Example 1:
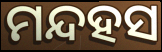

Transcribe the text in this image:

ମନ୍ଦହସ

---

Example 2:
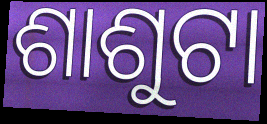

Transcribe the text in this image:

ଶାଶୁଟା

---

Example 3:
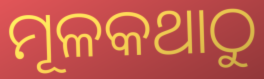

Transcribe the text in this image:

ମୂଳକଥାଠୁ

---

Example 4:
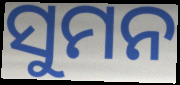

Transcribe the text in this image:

ସୁମନ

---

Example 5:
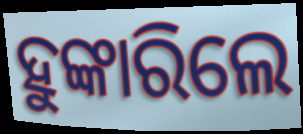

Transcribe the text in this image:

ହୁଙ୍କାରିଲେ